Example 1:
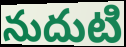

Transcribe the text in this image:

నుదుటి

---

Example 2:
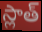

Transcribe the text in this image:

స్లాత్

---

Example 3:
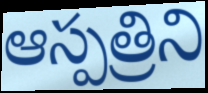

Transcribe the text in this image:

ఆస్పత్రిని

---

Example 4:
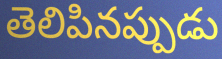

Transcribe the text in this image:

తెలిపినప్పుడు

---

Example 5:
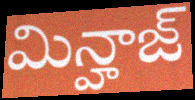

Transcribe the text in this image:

మిన్హాజ్